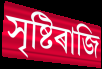
সৃষ্টিৰাজি